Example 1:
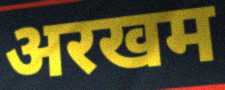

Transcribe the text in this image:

अरखम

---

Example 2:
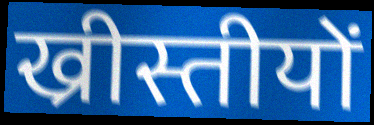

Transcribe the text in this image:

ख्रीस्तीयों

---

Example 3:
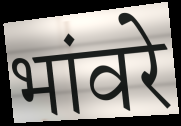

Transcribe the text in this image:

भांवरे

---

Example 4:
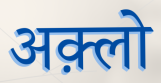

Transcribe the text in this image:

अक़्लो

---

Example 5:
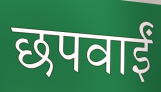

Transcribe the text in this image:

छपवाईं